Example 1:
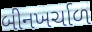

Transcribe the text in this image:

બીનખર્ચાળ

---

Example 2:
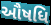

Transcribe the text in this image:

ઔષધિ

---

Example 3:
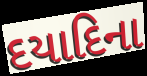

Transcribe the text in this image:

દયાદિના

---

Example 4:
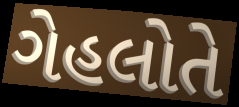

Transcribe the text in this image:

ગેહલોતે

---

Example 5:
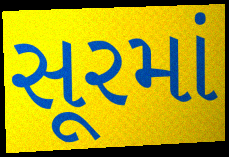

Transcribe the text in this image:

સૂરમાં